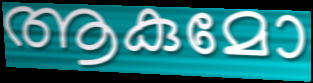
ആകുമോ